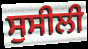
ਸੁਸੀਲੀ